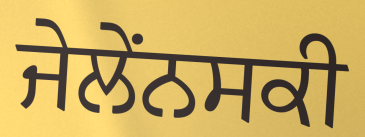
ਜੇਲੇਂਨਸਕੀ